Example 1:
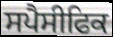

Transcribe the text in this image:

ਸਪੈਸੀਫਿਕ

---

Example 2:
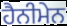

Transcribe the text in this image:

ਹੈਨੀਮੇਨ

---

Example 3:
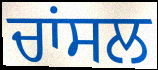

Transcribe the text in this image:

ਚਾਂਸਲ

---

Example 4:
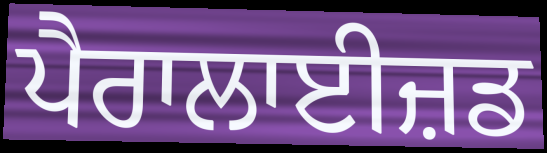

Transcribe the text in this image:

ਪੈਰਾਲਾਈਜ਼ਡ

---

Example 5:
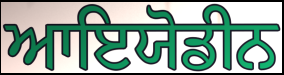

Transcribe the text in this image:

ਆਇਯੋਡੀਨ